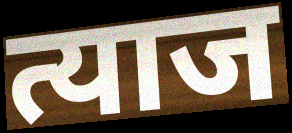
त्याज